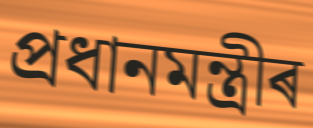
প্ৰধানমন্ত্ৰীৰ